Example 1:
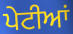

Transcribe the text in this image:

ਪੇਟੀਆਂ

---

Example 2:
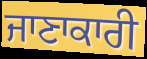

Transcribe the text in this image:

ਜਾਣਾਕਾਰੀ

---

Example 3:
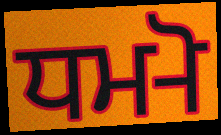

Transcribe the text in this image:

ਧਮ੍ਮੋ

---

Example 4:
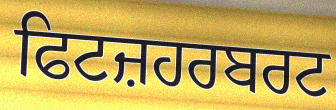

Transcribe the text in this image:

ਫਿਟਜ਼ਹਰਬਰਟ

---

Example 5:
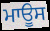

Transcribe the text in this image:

ਮਾਊਸ